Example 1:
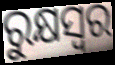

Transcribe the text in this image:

ରୁକ୍ଷସ୍ୱର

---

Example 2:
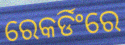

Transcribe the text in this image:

ରେକର୍ଡିଂରେ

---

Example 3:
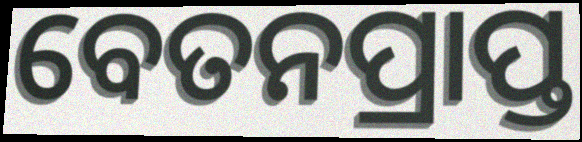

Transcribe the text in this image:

ବେତନପ୍ରାପ୍ତ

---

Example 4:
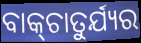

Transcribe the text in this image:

ବାକ୍‍ଚାତୁର୍ଯ୍ୟର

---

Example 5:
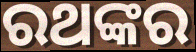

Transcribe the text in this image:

ରଥଙ୍କର